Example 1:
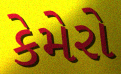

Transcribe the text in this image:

કેમેરો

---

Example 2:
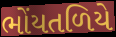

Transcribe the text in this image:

ભોંયતળિયે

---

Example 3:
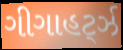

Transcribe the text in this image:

ગીગાહર્ટ્ઝ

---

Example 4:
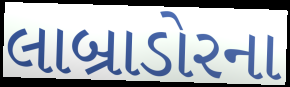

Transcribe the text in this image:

લાબ્રાડોરના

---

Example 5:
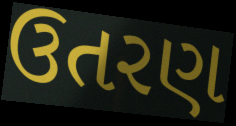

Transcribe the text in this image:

ઉતરણ